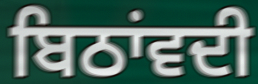
ਬਿਠਾਂਵਦੀ